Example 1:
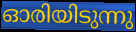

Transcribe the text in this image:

ഓരിയിടുന്നു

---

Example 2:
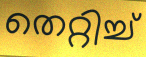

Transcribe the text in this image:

തെറ്റിച്ച്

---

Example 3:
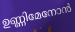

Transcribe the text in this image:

ഉണ്ണിമേനോൻ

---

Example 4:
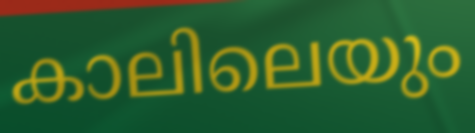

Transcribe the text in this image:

കാലിലെയും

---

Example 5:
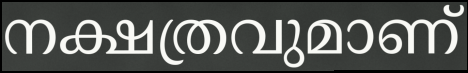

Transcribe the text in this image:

നക്ഷത്രവുമാണ്